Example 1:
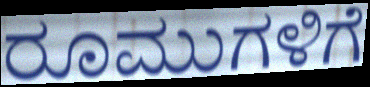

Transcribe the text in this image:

ರೂಮುಗಳಿಗೆ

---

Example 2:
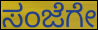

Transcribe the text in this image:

ಸಂಜೆಗೇ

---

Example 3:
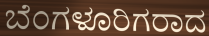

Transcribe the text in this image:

ಬೆಂಗಳೂರಿಗರಾದ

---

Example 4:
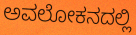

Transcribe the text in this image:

ಅವಲೋಕನದಲ್ಲಿ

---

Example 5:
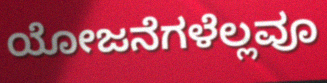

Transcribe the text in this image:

ಯೋಜನೆಗಳೆಲ್ಲವೂ